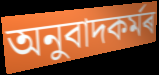
অনুবাদকৰ্মৰ